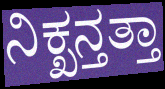
ನಿಕ್ಖನ್ತತ್ತಾ